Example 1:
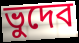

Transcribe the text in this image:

ভুদেব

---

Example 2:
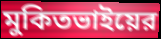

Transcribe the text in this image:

মুকিতভাইয়ের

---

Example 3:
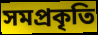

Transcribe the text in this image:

সমপ্রকৃতি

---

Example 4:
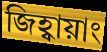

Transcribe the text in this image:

জিহ্বায়াং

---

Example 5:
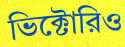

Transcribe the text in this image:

ভিক্টোরিও